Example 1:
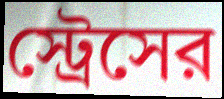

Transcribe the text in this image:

স্ট্রেসের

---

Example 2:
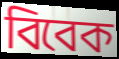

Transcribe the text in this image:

বিবেক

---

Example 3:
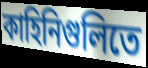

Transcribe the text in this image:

কাহিনিগুলিতে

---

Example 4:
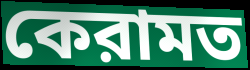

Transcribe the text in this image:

কেরামত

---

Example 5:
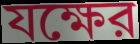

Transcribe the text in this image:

যক্ষের